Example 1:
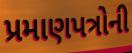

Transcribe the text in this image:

પ્રમાણપત્રોની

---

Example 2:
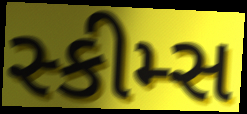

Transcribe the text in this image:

સ્કીમ્સ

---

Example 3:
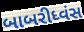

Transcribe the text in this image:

બાબરીધ્વંસ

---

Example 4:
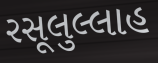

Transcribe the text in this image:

રસૂલુલ્લાહ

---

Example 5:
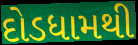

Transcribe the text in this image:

દોડધામથી